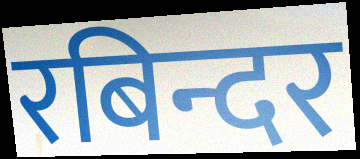
रबिन्दर